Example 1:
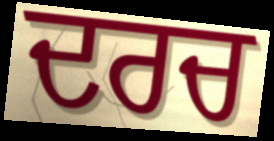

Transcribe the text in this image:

ਦਰਚ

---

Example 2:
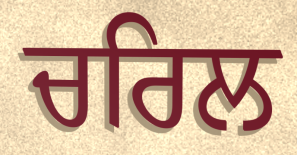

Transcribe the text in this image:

ਚਰਿਲ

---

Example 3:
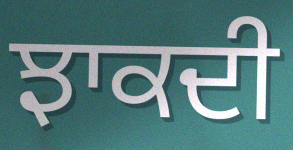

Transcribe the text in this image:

ਝਾਕਦੀ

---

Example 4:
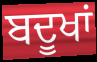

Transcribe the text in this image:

ਬਦੂਖਾਂ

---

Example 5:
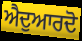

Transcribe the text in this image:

ਐਦੁਆਰਦੋ